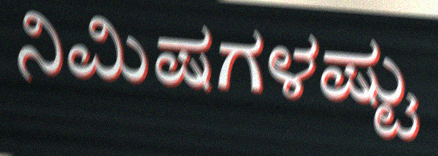
ನಿಮಿಷಗಳಷ್ಟು